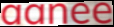
aanee